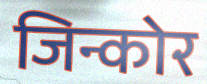
जिन्कोर